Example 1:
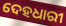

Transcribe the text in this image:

ଦେହଧାରୀ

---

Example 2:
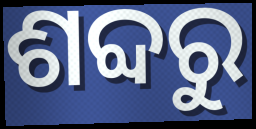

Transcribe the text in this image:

ଶବ୍ଦରୁ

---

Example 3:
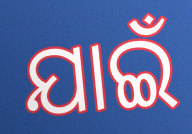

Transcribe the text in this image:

ଯାଇଁ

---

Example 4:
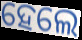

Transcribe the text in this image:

ହେଲେ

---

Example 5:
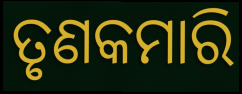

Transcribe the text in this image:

ତୃଣକମାରି